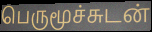
பெருமூச்சுடன்